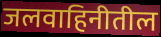
जलवाहिनीतील